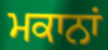
ਮਕਾਨਾਂ